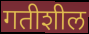
गतीशील